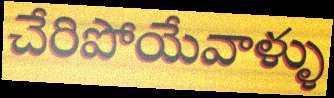
చేరిపోయేవాళ్ళు